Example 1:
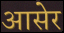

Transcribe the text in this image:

आसेर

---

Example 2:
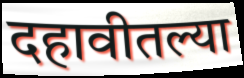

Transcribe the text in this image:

दहावीतल्या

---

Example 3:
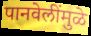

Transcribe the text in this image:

पानवेलींमुळे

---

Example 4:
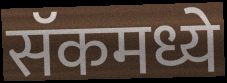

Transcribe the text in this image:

सॅकमध्ये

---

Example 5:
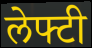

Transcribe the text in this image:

लेफ्टी